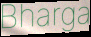
Bharga